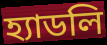
হ্যাডলি